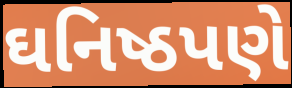
ઘનિષ્ઠપણે